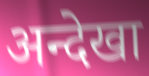
अन्देखा